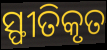
ସ୍ଫୀତିକୃତ